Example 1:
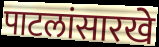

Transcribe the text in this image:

पाटलांसारखे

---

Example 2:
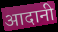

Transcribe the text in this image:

आदानी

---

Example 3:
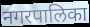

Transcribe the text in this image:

नगरपालिका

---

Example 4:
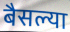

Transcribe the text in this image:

बैसल्या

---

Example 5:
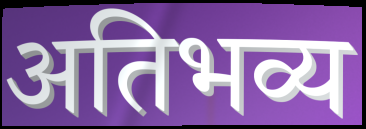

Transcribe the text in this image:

अतिभव्य